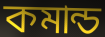
কমান্ড